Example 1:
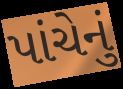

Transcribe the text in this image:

પાંચેનું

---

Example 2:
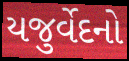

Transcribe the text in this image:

યજુર્વેદનો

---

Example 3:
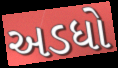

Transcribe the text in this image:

અડધો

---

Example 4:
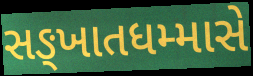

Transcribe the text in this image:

સઙ્ખાતધમ્માસે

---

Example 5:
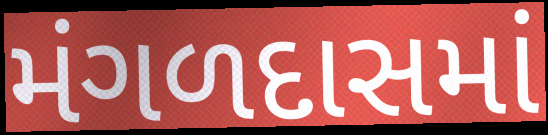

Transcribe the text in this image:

મંગળદાસમાં